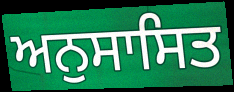
ਅਨੁਸਾਸਿਤ